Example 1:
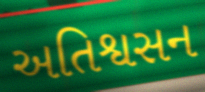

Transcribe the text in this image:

અતિશ્વસન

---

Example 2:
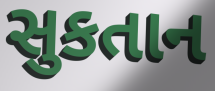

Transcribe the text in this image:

સુકતાન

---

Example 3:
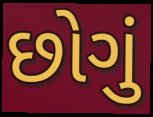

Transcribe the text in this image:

છોગું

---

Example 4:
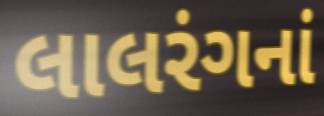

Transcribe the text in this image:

લાલરંગનાં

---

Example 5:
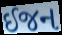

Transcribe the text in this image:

ઈજન